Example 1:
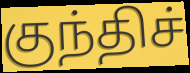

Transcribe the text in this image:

குந்திச்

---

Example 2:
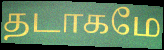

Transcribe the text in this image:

தடாகமே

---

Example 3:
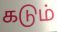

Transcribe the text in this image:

கடும்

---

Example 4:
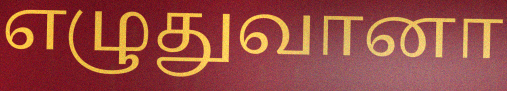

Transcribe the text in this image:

எழுதுவானா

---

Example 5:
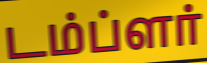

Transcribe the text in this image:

டம்ப்ளர்